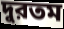
দুরতম